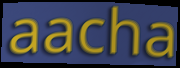
aacha